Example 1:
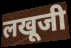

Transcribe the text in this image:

लखूजी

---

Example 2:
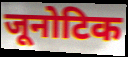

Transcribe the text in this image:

जूनोटिक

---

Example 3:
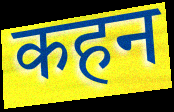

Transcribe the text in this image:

कहन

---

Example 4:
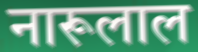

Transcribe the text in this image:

नारूलाल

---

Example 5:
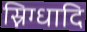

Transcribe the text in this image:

स्निग्धादि